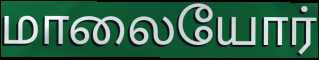
மாலையோர்